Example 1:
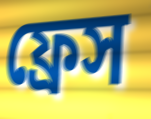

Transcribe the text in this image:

ফ্রেস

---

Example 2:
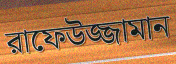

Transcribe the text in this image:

রাফেউজ্জামান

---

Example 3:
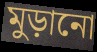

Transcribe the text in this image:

মুড়ানো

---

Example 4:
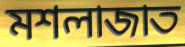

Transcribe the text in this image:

মশলাজাত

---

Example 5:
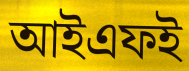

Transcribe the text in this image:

আইএফই